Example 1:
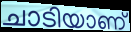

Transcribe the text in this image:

ചാടിയാണ്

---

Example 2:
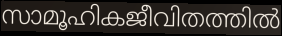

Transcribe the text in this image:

സാമൂഹികജീവിതത്തിൽ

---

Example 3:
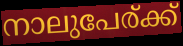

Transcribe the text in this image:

നാലുപേര്ക്ക്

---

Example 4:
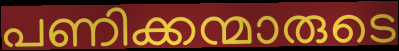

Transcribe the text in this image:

പണിക്കന്മാരുടെ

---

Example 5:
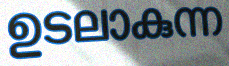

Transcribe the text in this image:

ഉടലാകുന്ന